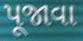
પૂજાવા